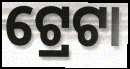
ଟ୍ରେଟା